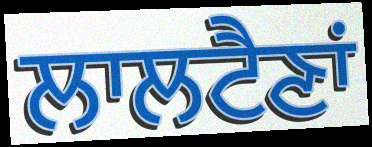
ਲਾਲਟੈਣਾਂ